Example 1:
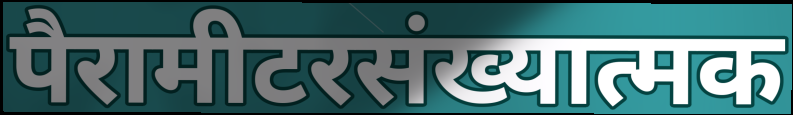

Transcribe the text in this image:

पैरामीटरसंख्यात्मक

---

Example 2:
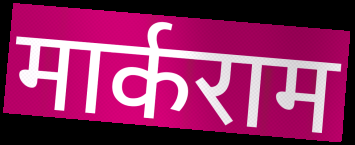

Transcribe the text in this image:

मार्कराम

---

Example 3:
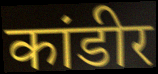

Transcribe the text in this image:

कांडीर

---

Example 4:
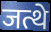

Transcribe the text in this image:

जत्थे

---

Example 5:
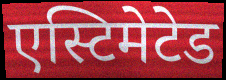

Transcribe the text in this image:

एस्टिमेटेड